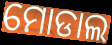
ମୋଡାଲ